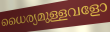
ധൈര്യമുള്ളവളോ